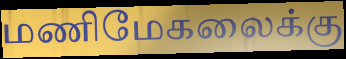
மணிமேகலைக்கு